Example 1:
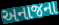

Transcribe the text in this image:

અનાજના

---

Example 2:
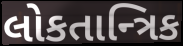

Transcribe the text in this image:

લોકતાન્ત્રિક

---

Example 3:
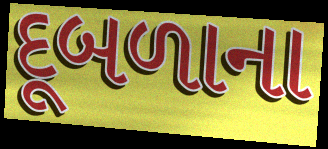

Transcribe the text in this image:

દૂબળાના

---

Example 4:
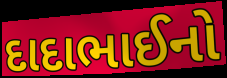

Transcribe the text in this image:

દાદાભાઈનો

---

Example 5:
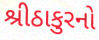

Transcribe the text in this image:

શ્રીઠાકુરનો